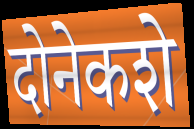
दोनेकशे